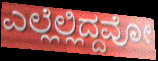
ಎಲ್ಲೆಲ್ಲಿದ್ದವೋ